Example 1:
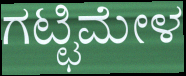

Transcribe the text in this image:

ಗಟ್ಟಿಮೇಳ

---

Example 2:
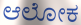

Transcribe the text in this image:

ಆಲೋಕ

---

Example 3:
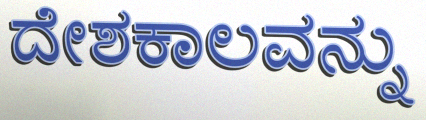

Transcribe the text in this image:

ದೇಶಕಾಲವನ್ನು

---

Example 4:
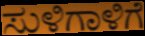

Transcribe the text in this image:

ಸುಳಿಗಾಳಿಗೆ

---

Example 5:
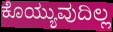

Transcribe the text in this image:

ಕೊಯ್ಯುವುದಿಲ್ಲ